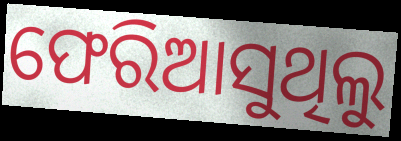
ଫେରିଆସୁଥିଲୁ